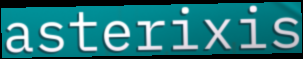
asterixis